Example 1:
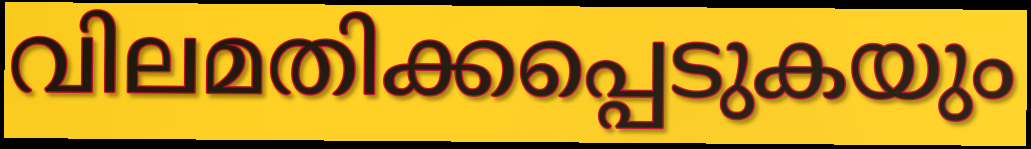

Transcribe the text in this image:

വിലമതിക്കപ്പെടുകയും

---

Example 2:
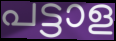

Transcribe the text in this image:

പട്ടാള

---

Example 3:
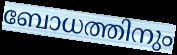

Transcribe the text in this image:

ബോധത്തിനും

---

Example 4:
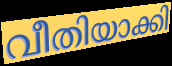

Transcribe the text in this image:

വീതിയാക്കി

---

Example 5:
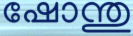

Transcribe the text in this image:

ഷോന്തു